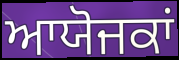
ਆਯੋਜਕਾਂ